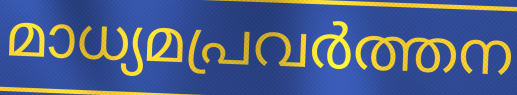
മാധ്യമപ്രവർത്തന